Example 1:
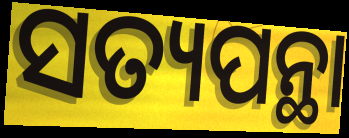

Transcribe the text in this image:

ସତ୍ୟପନ୍ଥା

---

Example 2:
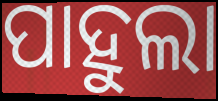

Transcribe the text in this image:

ପାହୁଲା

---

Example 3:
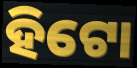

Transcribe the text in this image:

ହିଟୋ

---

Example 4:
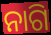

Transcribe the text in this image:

ନାଗି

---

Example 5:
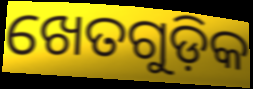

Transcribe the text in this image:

ଖେତଗୁଡ଼ିକ